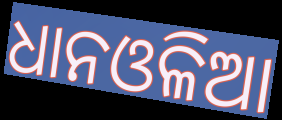
ଧାନଓଳିଆ